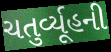
ચતુર્વ્યૂહની